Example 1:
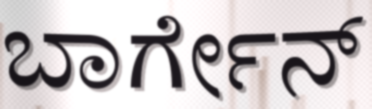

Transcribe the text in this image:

ಬಾರ್ಗೇನ್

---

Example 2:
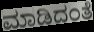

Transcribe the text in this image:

ಮಾಡಿದಂತೆ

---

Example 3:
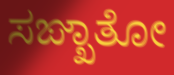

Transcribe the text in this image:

ಸಙ್ಖಾತೋ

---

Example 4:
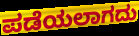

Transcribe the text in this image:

ಪಡೆಯಲಾಗದು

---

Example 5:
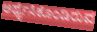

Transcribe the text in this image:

ಅರ್ಥೈಸಿಕೊಂಡಿರುವ